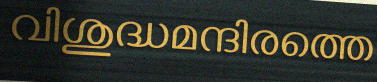
വിശുദ്ധമന്ദിരത്തെ